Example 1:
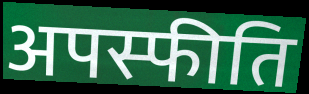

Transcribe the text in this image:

अपस्फीति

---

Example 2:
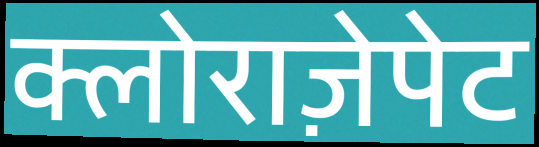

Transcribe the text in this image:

क्लोराज़ेपेट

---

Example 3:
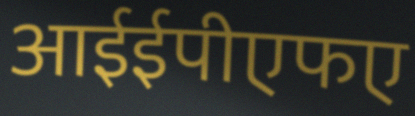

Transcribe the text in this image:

आईईपीएफए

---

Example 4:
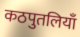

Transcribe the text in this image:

कठपुतलियाँ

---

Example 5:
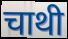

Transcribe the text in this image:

चाथी